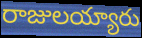
రాజులయ్యారు